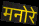
मनोरे